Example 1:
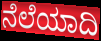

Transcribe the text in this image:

ನೆಲೆಯಾದಿ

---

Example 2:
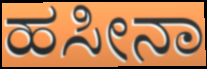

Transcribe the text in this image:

ಹಸೀನಾ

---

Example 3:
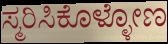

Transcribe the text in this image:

ಸ್ಮರಿಸಿಕೊಳ್ಳೋಣ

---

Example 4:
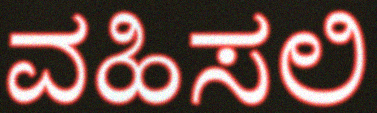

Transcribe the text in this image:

ವಹಿಸಲಿ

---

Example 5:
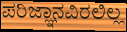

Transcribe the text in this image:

ಪರಿಜ್ಞಾನವಿರಲಿಲ್ಲ